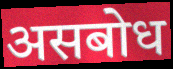
असबोध